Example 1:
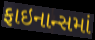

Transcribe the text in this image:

ફાઇનાન્સમાં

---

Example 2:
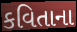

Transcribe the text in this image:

કવિતાના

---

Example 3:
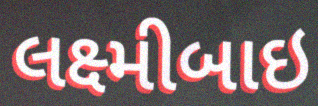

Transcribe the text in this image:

લક્ષ્મીબાઇ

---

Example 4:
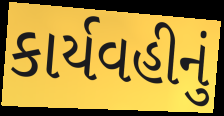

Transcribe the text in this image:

કાર્યવહીનું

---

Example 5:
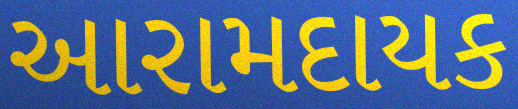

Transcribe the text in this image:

આરામદાયક